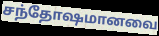
சந்தோஷமானவை